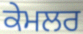
ਕੇਮਲਰ